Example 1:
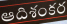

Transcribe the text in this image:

ఆదిశంకర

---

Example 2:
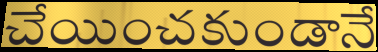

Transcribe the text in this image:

చేయించకుండానే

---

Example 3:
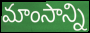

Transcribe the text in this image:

మాంసాన్ని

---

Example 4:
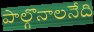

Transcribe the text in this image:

పాల్గొనాలనేది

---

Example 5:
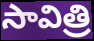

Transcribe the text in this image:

సావిత్రి